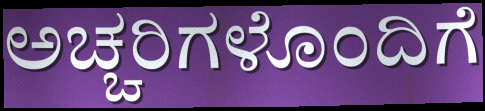
ಅಚ್ಚರಿಗಳೊಂದಿಗೆ